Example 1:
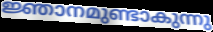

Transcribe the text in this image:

ജ്ഞാനമുണ്ടാകുന്നു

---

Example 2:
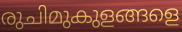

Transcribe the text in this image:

രുചിമുകുളങ്ങളെ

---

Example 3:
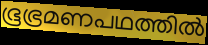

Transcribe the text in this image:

ഭൂഭ്രമണപഥത്തിൽ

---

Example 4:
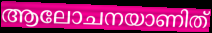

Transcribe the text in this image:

ആലോചനയാണിത്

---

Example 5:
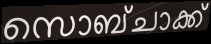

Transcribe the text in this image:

സൊബ്ചാക്ക്